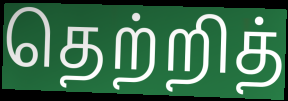
தெற்றித்